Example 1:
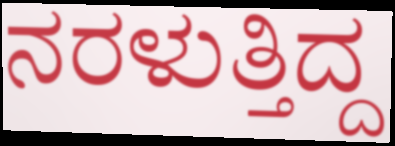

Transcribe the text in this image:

ನರಳುತ್ತಿದ್ದ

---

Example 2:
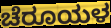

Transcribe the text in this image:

ಚೆರೂಯಳ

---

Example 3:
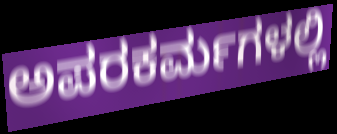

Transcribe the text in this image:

ಅಪರಕರ್ಮಗಳಲ್ಲಿ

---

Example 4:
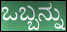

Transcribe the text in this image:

ಒಬ್ಬನ್ನು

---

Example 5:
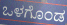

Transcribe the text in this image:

ಒಳಗೊಂಡ